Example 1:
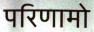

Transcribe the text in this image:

परिणामो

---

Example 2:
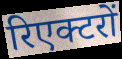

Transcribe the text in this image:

रिएक्टरों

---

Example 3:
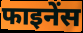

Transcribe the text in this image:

फाइनेंस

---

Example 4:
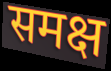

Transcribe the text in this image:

समक्ष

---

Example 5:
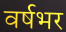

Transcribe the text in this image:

वर्षभर